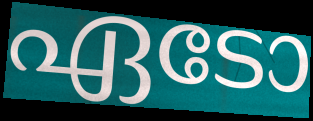
ഏടോ